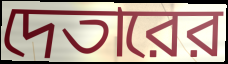
দেতারের